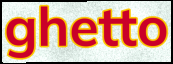
ghetto